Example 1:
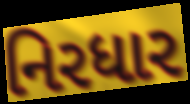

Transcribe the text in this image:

નિરધાર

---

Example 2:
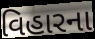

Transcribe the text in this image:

વિહારના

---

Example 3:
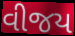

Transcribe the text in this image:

વીજય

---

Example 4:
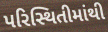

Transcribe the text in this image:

પરિસ્થિતીમાંથી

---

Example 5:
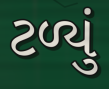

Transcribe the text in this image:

ટળ્યું